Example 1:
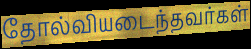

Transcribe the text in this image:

தோல்வியடைந்தவர்கள்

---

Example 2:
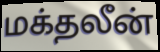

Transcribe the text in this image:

மக்தலீன்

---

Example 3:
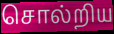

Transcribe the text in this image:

சொல்றிய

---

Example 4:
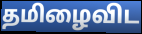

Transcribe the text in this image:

தமிழைவிட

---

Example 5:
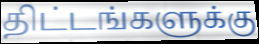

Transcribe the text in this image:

திட்டங்களுக்கு